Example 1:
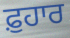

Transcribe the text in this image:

ਫ਼ੁਹਾਰ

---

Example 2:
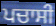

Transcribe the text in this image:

ਪਚਾਸੀ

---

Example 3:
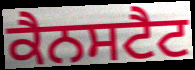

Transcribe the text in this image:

ਕੈਨਸਟੈਟ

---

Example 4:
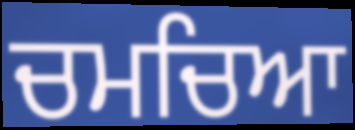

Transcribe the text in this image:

ਚਮਚਿਆ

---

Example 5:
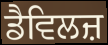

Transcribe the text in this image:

ਡੈਵਿਲਜ਼